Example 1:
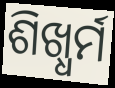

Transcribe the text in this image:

ଶିଖ୍ଧର୍ମ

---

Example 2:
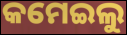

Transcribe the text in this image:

କମେଇଲୁ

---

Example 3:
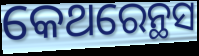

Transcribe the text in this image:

କେଥରେନ୍ଥସ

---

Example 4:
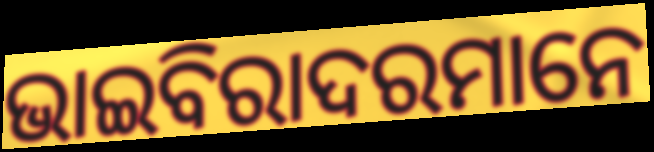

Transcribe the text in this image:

ଭାଇବିରାଦରମାନେ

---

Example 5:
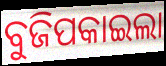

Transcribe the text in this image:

ବୁଜିପକାଇଲା